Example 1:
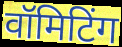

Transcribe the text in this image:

वॉमिटिंग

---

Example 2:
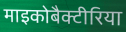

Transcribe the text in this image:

माइकोबैक्टीरिया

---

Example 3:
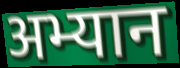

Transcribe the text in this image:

अभ्यान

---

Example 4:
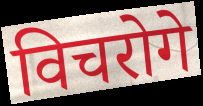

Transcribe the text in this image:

विचरोगे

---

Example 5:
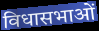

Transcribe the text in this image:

विधासभाओं